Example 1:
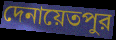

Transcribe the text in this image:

দেনায়েতপুর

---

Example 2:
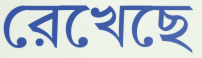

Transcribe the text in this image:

রেখেছে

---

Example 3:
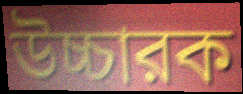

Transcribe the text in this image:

উচ্চারক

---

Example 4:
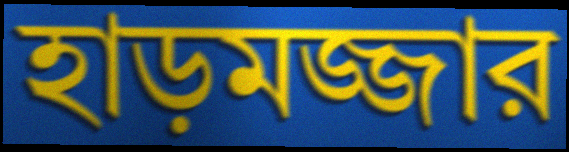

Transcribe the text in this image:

হাড়মজ্জার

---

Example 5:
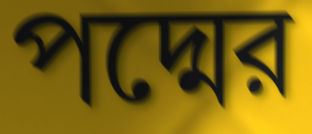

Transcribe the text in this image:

পদ্মের